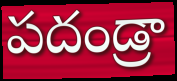
పదండ్రా